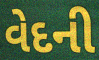
વેદની